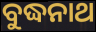
ବୁଦ୍ଧନାଥ